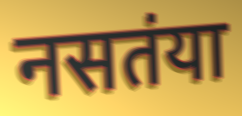
नसतंया